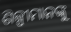
ଶିଳ୍ପୀମାନଙ୍କୁ